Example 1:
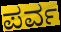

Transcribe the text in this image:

ಪರ್ವ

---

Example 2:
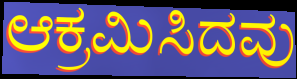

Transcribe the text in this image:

ಆಕ್ರಮಿಸಿದವು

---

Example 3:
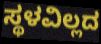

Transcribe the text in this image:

ಸ್ಥಳವಿಲ್ಲದ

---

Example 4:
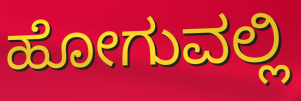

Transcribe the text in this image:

ಹೋಗುವಲ್ಲಿ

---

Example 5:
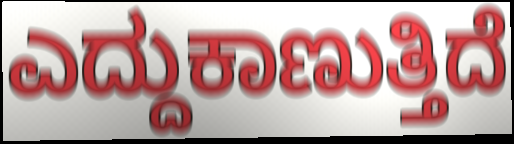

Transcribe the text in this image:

ಎದ್ದುಕಾಣುತ್ತಿದೆ